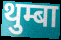
थुम्बा